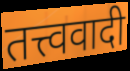
तत्त्ववादी